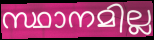
സ്ഥാനമില്ല